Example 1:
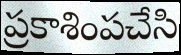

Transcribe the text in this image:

ప్రకాశింపచేసి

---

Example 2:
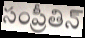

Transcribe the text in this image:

సంప్రీతిన్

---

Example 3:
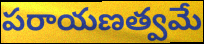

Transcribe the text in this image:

పరాయణత్వమే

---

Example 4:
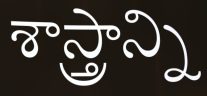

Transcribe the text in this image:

శాస్త్రాన్ని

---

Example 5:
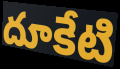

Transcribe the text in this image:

దూకేటి